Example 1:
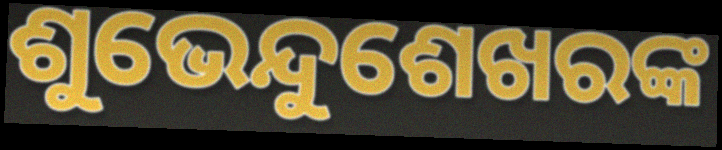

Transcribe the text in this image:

ଶୁଭେନ୍ଦୁଶେଖରଙ୍କ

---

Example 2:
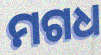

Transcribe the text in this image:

ମଗଧ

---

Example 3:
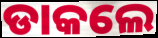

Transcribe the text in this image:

ଡାକଲେ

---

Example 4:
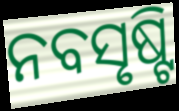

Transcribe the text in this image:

ନବସୃଷ୍ଟି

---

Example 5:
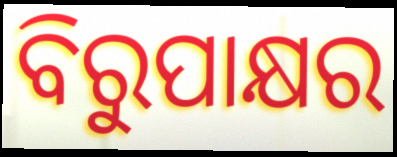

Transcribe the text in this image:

ବିରୁପାକ୍ଷର